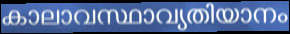
കാലാവസ്ഥാവ്യതിയാനം